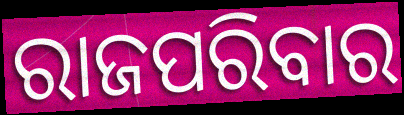
ରାଜପରିବାର